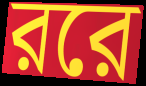
ররে